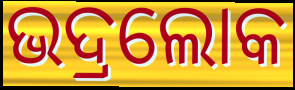
ଭଦ୍ରଲୋକ